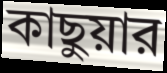
কাছুয়ার